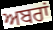
ਅਬਰਾਂ